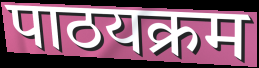
पाठयक्रम